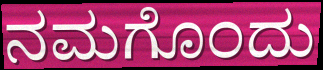
ನಮಗೊಂದು